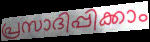
പ്രസാദിപ്പിക്കാം